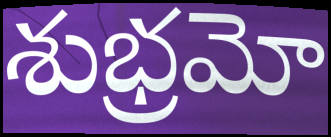
శుభ్రమో